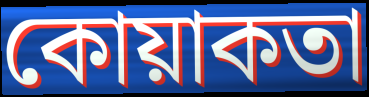
কোয়াকতা